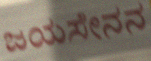
ಜಯಸೇನನ